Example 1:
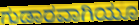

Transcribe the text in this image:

ಗುಡಾರವಾಗಿಯೂ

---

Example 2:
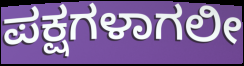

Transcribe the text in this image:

ಪಕ್ಷಗಳಾಗಲೀ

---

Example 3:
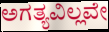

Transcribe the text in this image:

ಅಗತ್ಯವಿಲ್ಲವೇ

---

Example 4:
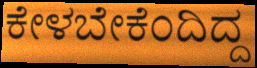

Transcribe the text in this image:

ಕೇಳಬೇಕೆಂದಿದ್ದ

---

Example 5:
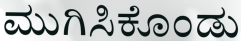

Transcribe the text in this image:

ಮುಗಿಸಿಕೊಂಡು